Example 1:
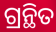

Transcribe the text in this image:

ଗ୍ରନ୍ଥିତ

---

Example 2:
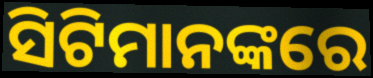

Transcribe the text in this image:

ସିଟିମାନଙ୍କରେ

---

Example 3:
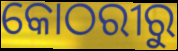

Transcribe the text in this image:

କୋଠରୀରୁ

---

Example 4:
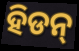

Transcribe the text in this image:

ହିଡନ୍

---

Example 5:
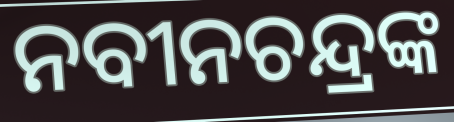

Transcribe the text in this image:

ନବୀନଚନ୍ଦ୍ରଙ୍କ